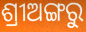
ଶ୍ରୀଅଙ୍ଗରୁ